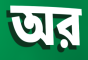
অর